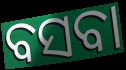
ବସବା